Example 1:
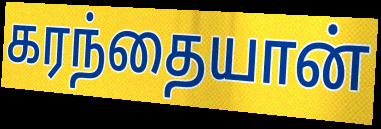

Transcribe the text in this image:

கரந்தையான்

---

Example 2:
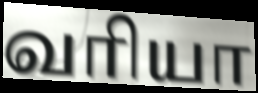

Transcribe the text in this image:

வரியா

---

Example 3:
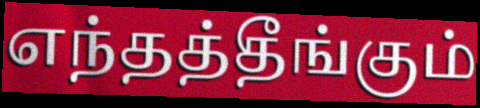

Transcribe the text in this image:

எந்தத்தீங்கும்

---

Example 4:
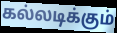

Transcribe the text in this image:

கல்லடிக்கும்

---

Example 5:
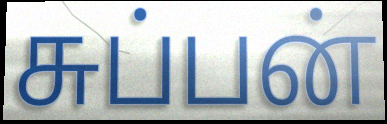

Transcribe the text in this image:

சுப்பன்